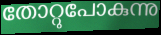
തോറ്റുപോകുന്നു